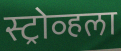
स्ट्रोव्हला